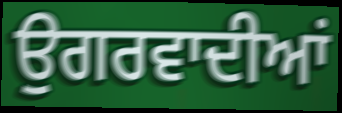
ਉਗਰਵਾਦੀਆਂ